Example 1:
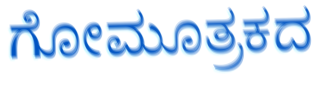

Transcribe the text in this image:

ಗೋಮೂತ್ರಕದ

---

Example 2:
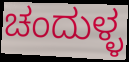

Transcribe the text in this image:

ಚಂದುಳ್ಳ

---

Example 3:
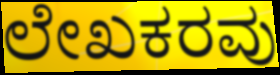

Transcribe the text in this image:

ಲೇಖಕರವು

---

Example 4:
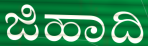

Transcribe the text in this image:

ಜಿಹಾದಿ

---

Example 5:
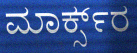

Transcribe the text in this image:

ಮಾರ್ಕ್ಸ್‌ರ